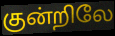
குன்றிலே